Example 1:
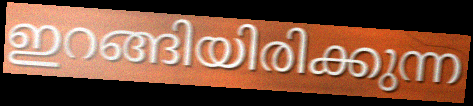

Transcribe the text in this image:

ഇറങ്ങിയിരിക്കുന്ന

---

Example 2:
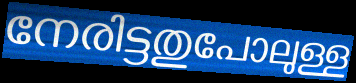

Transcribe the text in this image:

നേരിട്ടതുപോലുള്ള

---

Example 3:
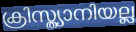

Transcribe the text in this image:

ക്രിസ്ത്യാനിയല്ല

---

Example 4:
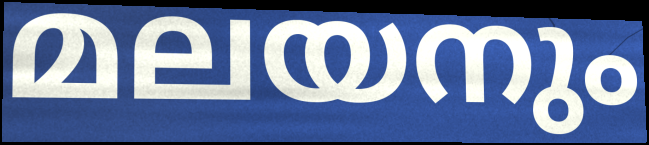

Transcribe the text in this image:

മലയനും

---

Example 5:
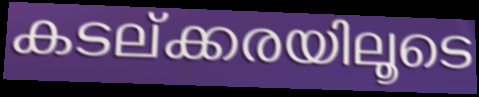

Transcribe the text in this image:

കടല്ക്കരയിലൂടെ